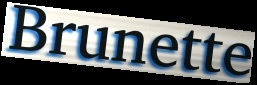
Brunette